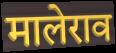
मालेराव